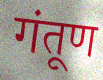
गंतूण